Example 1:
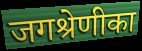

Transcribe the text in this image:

जगश्रेणीका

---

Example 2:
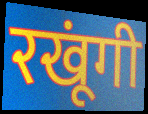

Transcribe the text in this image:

रखूंगी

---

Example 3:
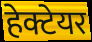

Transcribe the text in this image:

हेक्टेयर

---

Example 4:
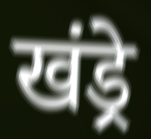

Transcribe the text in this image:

खंड्रे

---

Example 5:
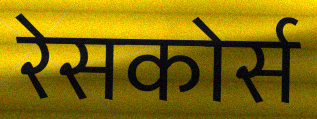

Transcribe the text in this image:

रेसकोर्स